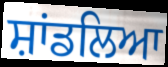
ਸ਼ਾਂਡਲਿਆ